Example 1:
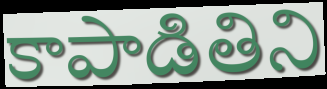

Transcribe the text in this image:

కాపాడితిని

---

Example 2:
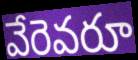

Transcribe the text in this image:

వేరెవరూ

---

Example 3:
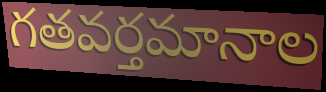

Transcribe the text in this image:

గతవర్తమానాల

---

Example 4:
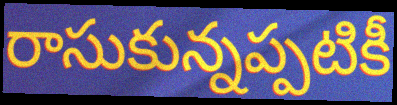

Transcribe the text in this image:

రాసుకున్నప్పటికీ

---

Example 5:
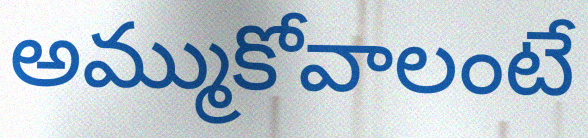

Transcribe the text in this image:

అమ్ముకోవాలంటే